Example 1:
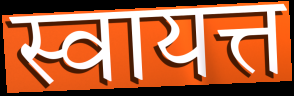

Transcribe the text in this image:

स्वायत्त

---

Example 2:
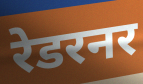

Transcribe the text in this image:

रेडरनर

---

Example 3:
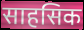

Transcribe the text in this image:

साहसिक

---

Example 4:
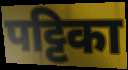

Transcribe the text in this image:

पट्टिका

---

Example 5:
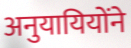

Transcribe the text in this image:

अनुयायियोंने